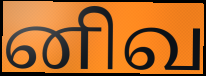
னிவ